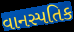
વાનસ્પતિક